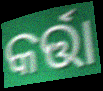
କର୍ତ୍ତା